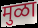
मुळा